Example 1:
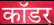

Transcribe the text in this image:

कॉडर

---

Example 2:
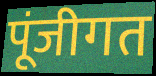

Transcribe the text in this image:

पूंजीगत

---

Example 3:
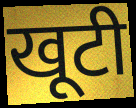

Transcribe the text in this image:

खूटी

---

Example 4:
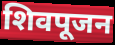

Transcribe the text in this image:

शिवपूजन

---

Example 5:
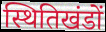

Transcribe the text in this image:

स्थितिखंडों